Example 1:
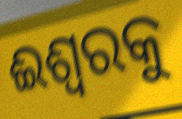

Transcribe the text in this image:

ଈଶ୍ୱରକୁ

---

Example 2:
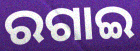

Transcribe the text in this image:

ରଗାଇ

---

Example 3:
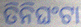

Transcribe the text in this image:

ତିନିଘଂଟା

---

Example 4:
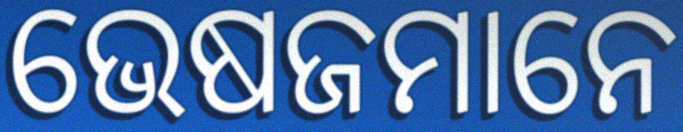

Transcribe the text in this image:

ଭେଷଜମାନେ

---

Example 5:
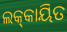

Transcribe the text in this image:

ଲକ୍‌କାୟିତ